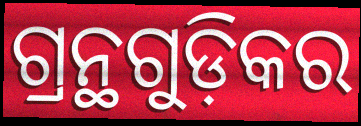
ଗ୍ରନ୍ଥଗୁଡ଼ିକର